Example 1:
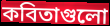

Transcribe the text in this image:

কবিতাগুলো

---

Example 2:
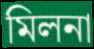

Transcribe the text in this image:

মিলনা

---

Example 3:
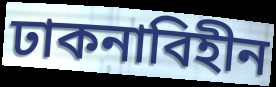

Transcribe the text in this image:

ঢাকনাবিহীন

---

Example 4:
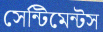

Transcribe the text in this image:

সেন্টিমেন্টস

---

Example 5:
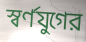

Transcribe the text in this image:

স্বর্ণযুগের